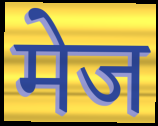
मेज